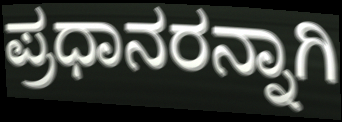
ಪ್ರಧಾನರನ್ನಾಗಿ